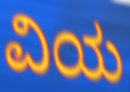
ವಿಯ